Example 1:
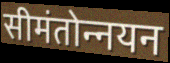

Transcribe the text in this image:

सीमंतोन्नयन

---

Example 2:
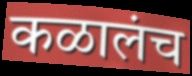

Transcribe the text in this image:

कळालंच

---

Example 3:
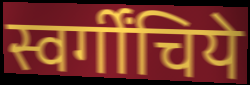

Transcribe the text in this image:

स्वर्गींचिये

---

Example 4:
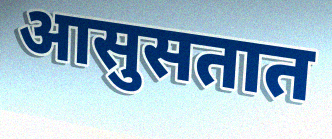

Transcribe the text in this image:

आसुसतात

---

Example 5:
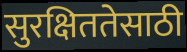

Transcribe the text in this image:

सुरक्षिततेसाठी